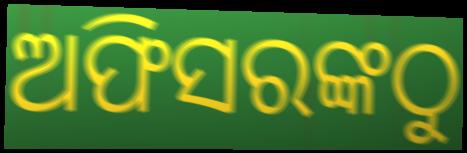
ଅଫିସରଙ୍କଠୁ